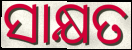
ସାକ୍ଷତ